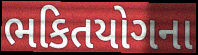
ભકિતયોગના